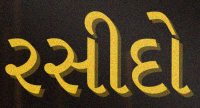
રસીદો